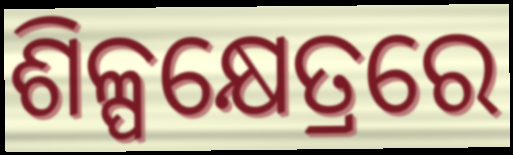
ଶିଳ୍ପକ୍ଷେତ୍ରରେ